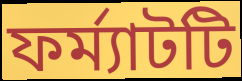
ফর্ম্যাটটি